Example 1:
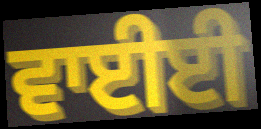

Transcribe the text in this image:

ਵਾਈਈ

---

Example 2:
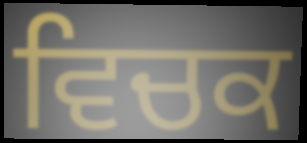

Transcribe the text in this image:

ਵਿਚਕ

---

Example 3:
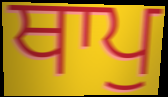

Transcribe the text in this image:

ਥਾਪੁ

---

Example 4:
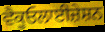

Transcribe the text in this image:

ਵੈਕੂਓਲਾਈਜ਼ੇਸ਼ਨ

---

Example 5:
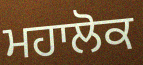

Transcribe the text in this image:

ਮਹਾਲੋਕ